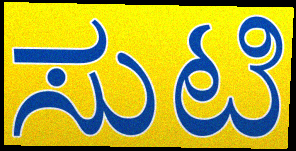
ಸುಟಿ